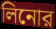
লিনোর